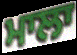
ਮਾਲਾ